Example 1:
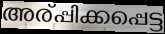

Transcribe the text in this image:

അര്പ്പിക്കപ്പെട്ട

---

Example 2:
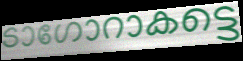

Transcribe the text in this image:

ടാഗോറാകട്ടെ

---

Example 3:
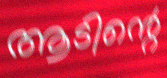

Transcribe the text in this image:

ആടിന്റെ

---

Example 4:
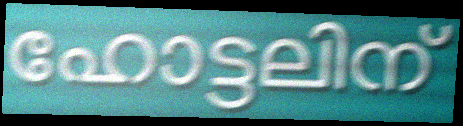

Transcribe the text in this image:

ഹോട്ടലിന്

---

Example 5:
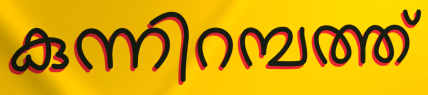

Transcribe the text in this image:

കുന്നിറമ്പത്ത്